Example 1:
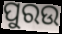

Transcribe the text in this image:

ପୁରଉ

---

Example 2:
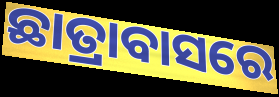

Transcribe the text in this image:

ଛାତ୍ରାବାସରେ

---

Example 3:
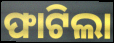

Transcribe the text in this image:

ଫାଟିଲା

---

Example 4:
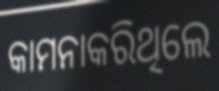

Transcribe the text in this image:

କାମନାକରିଥିଲେ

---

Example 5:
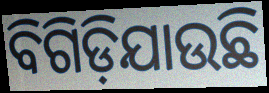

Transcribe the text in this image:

ବିଗିଡ଼ିଯାଉଛି